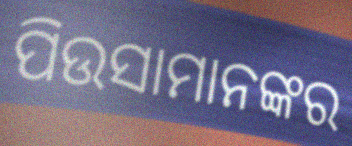
ପିଉସାମାନଙ୍କର